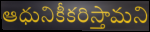
ఆధునికీకరిస్తామని